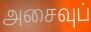
அசைவுப்